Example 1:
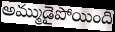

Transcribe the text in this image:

అమ్ముడైపోయింది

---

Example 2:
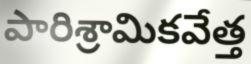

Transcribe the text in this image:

పారిశ్రామికవేత్త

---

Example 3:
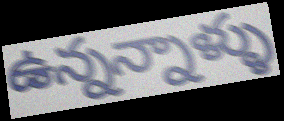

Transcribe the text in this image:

ఉన్నన్నాళ్ళు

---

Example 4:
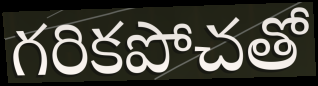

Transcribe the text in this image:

గరికపోచతో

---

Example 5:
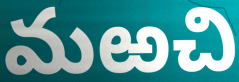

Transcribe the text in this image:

మఱచి